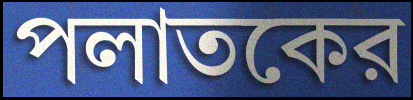
পলাতকের